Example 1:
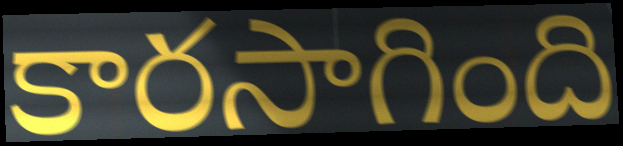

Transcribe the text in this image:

కారసాగింది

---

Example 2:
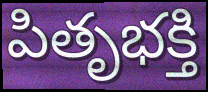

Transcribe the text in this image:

పితృభక్తి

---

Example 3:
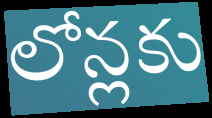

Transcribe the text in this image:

లోన్లకు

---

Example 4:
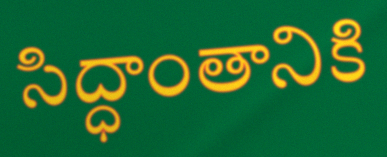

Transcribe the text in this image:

సిద్ధాంతానికి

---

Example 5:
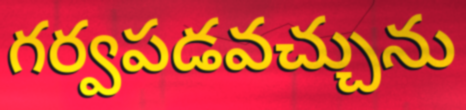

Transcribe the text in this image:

గర్వపడవచ్చును